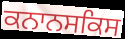
ਕਨਾਨਸਕਿਸ